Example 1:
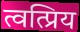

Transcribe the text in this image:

त्वत्प्रिय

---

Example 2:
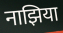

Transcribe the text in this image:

नाझिया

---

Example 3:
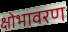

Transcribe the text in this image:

क्षोभावरण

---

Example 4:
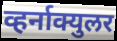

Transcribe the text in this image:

व्हर्नाक्युलर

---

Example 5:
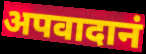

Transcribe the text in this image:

अपवादानं